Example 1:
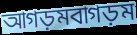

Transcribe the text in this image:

আগড়মবাগড়ম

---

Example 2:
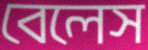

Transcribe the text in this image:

বেলেস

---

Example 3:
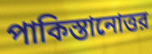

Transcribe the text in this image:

পাকিস্তানোত্তর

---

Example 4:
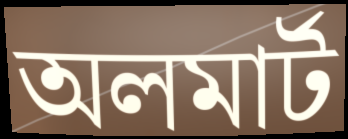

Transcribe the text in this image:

অলমার্ট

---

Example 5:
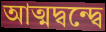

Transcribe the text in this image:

আত্মদ্বন্দ্বে